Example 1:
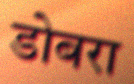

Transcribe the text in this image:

डोबरा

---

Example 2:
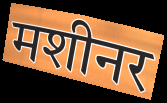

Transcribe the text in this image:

मशीनर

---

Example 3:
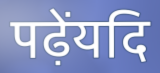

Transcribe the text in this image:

पढ़ेंयदि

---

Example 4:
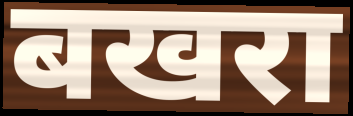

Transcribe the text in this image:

बखरा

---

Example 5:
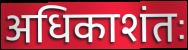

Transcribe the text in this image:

अधिकाशंतः